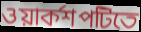
ওয়ার্কশপটিতে